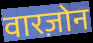
वारज़ोन